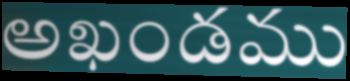
అఖండము